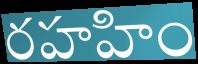
రహహిం